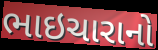
ભાઇચારાનો